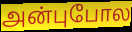
அன்புபோல